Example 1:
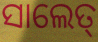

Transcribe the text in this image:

ସାଲେତ୍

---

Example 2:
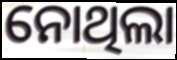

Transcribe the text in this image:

ନୋଥିଲା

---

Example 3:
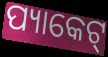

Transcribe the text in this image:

ପ୍ୟାକେଟ୍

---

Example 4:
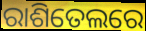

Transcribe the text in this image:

ରାଶିତେଲରେ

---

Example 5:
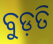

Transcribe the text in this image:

ବୁଡ଼ତି